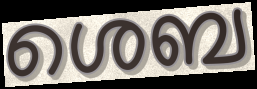
ശെബ